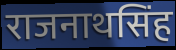
राजनाथसिंह